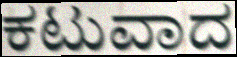
ಕಟುವಾದ